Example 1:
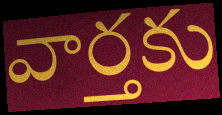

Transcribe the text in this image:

వార్తకు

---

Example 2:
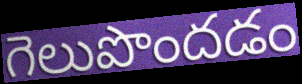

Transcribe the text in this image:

గెలుపొందడం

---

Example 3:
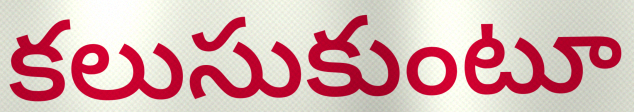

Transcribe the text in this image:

కలుసుకుంటూ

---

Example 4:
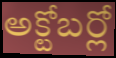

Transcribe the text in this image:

అక్టోబర్లో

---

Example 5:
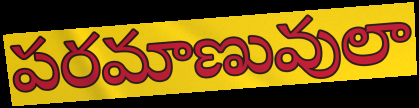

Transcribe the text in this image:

పరమాణువులా